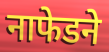
नाफेडने